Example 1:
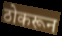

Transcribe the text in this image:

ठोकरून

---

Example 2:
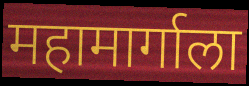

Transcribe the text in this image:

महामार्गाला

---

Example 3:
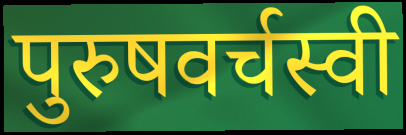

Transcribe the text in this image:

पुरुषवर्चस्वी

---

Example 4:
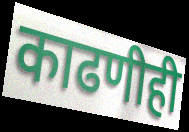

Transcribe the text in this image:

काढणीही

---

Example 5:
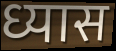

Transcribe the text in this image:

ध्यास